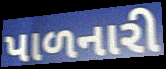
પાળનારી